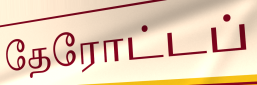
தேரோட்டப்